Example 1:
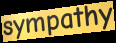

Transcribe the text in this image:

sympathy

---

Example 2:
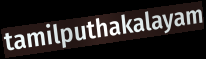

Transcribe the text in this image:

tamilputhakalayam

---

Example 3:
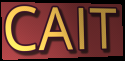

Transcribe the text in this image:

CAIT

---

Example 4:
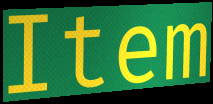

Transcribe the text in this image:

Item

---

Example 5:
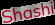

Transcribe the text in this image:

Shashi